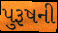
પુરૂષની